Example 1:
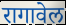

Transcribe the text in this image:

रागावेल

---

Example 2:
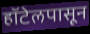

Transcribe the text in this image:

हॉटेलपासून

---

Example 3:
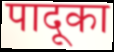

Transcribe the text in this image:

पादूका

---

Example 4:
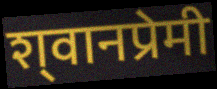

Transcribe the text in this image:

श्वानप्रेमी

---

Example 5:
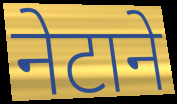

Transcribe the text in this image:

नेटाने